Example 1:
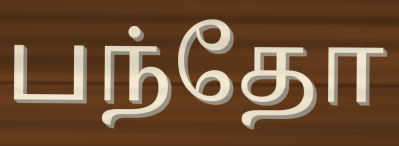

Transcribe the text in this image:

பந்தோ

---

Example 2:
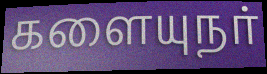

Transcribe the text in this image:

களையுநர்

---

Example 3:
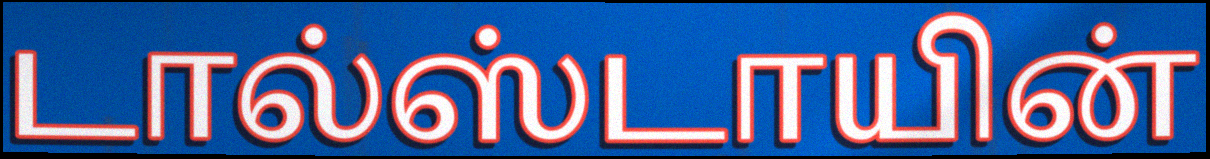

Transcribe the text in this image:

டால்ஸ்டாயின்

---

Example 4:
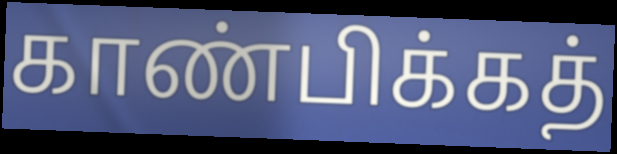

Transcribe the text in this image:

காண்பிக்கத்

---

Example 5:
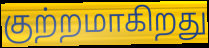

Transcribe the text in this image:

குற்றமாகிறது